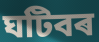
ঘটিবৰ